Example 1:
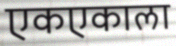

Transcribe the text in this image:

एकएकाला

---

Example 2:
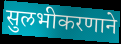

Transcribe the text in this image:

सुलभीकरणाने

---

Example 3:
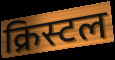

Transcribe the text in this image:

क्रिस्टल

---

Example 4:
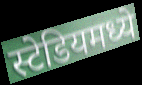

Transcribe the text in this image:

स्टेडियमध्ये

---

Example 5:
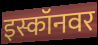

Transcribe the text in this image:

इस्कॉनवर